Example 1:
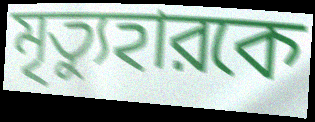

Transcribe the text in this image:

মৃত্যুহারকে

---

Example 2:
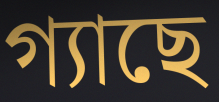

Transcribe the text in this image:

গ্যাছে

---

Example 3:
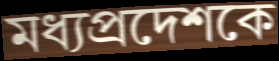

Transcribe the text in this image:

মধ্যপ্রদেশকে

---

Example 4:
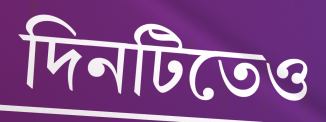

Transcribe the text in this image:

দিনটিতেও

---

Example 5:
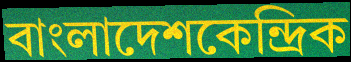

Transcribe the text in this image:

বাংলাদেশকেন্দ্রিক